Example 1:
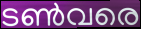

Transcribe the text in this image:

ടൺവരെ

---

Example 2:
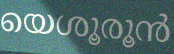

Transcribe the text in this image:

യെശൂരൂൻ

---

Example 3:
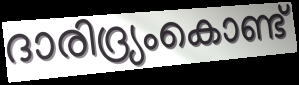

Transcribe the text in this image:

ദാരിദ്ര്യംകൊണ്ട്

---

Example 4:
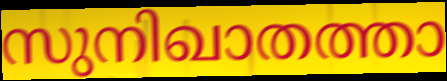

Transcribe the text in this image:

സുനിഖാതത്താ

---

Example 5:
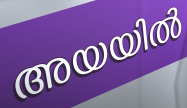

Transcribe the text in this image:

അയയിൽ